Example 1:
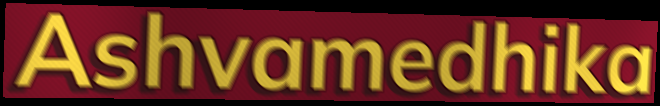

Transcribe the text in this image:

Ashvamedhika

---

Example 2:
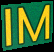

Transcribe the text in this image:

IM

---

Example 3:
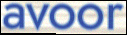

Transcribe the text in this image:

avoor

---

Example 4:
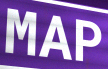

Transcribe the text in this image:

MAP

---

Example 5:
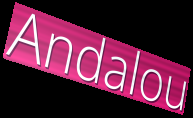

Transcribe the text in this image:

Andalou